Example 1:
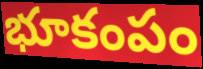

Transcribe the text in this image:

భూకంపం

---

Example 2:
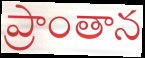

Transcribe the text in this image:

ప్రాంతాన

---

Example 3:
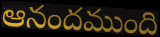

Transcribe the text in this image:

ఆనందముంది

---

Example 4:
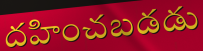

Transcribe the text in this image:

దహించబడడు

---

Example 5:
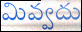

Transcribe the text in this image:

మివ్వదు